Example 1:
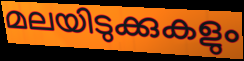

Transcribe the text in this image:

മലയിടുക്കുകളും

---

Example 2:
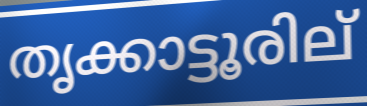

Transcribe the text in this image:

തൃക്കാട്ടൂരില്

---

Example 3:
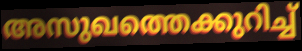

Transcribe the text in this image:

അസുഖത്തെക്കുറിച്ച്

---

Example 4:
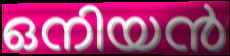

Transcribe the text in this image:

ഒനിയൻ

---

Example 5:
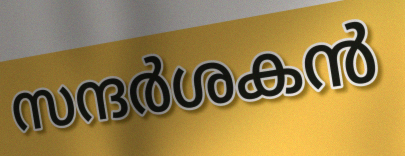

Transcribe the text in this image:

സന്ദർശകൻ